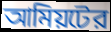
আমিয়টের